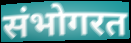
संभोगरत